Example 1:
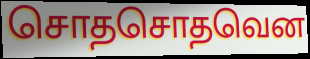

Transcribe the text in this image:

சொதசொதவென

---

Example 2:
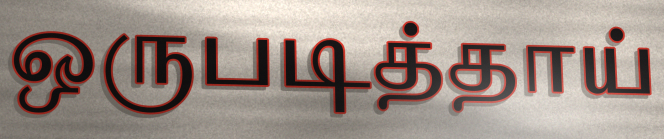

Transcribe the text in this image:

ஒருபடித்தாய்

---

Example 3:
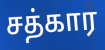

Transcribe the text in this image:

சத்கார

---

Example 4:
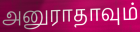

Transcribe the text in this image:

அனுராதாவும்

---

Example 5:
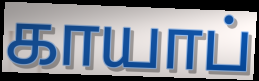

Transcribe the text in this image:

காயாப்